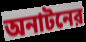
অনাটনের